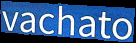
vachato